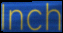
Inch